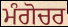
ਮੰਗੋਚਰ